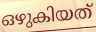
ഒഴുകിയത്